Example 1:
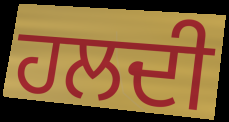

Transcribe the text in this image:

ਹਲਦੀ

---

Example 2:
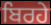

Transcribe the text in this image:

ਬਿਰਹੇ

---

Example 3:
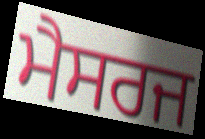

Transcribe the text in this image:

ਮੈਸਰਜ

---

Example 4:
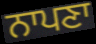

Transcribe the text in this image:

ਨਾਪਣਾ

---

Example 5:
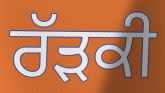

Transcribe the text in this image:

ਰੱੜਕੀ